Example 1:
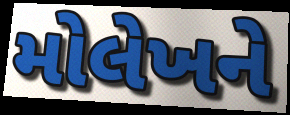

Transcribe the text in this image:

મોલેખને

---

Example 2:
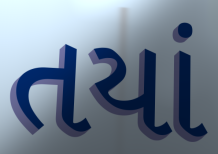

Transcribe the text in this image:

તયાં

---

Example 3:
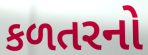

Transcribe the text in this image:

કળતરનો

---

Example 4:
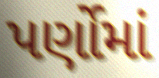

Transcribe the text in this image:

પર્ણોમાં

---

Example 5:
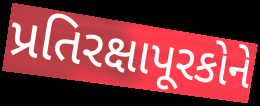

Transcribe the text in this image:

પ્રતિરક્ષાપૂરકોને